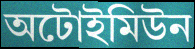
অটোইমিউন